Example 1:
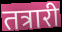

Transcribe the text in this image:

तत्रारी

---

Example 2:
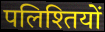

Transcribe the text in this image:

पलिश्‍तियों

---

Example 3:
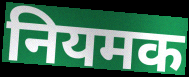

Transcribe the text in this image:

नियमक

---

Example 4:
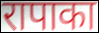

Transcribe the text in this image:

रापाका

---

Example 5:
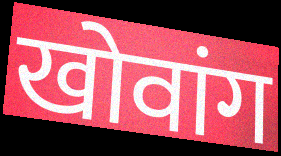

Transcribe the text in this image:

खोवांग